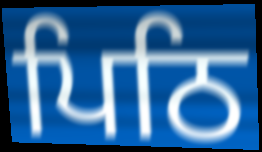
ਪਿਠਿ